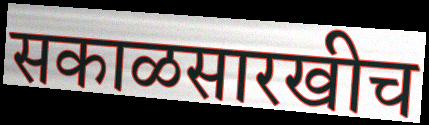
सकाळसारखीच